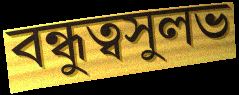
বন্ধুত্বসুলভ